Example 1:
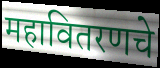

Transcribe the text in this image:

महावितरणचे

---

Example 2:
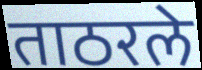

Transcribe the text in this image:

ताठरले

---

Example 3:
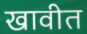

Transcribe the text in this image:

खावीत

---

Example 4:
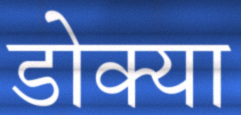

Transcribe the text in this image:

डोक्या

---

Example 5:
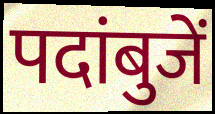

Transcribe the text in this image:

पदांबुजें